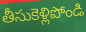
తీసుకెళ్లిపోండి